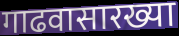
गाढवासारख्या